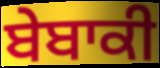
ਬੇਬਾਕੀ